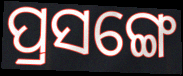
ପ୍ରସଙ୍ଗେ